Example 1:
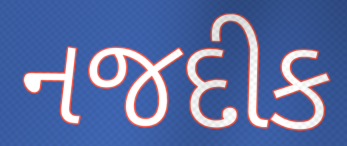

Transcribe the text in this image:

નજદીક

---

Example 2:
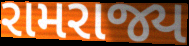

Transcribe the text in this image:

રામરાજ્ય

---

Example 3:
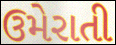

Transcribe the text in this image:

ઉમેરાતી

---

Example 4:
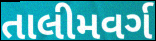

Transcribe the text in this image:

તાલીમવર્ગ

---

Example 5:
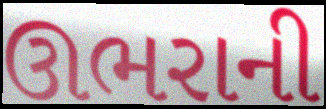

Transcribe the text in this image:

ઊભરાની